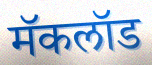
मॅकलॉड